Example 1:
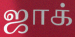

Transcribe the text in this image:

ஜாக்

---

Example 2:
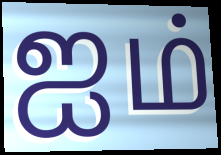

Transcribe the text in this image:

ஐம்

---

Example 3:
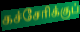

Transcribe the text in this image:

கச்சேரிக்குப்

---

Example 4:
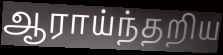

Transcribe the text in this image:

ஆராய்ந்தறிய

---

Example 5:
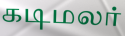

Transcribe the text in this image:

கடிமலர்